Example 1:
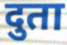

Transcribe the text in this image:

दुता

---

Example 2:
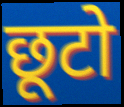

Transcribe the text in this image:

छूटो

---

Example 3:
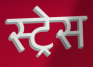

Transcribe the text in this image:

स्ट्रेस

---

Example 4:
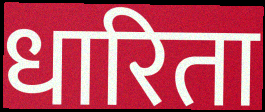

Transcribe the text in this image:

धारिता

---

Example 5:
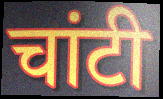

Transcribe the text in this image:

चांटी